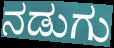
ನಡುಗು